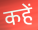
कहें